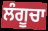
ਲੰਗੂਚਾ